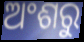
ଅଂଶରୁ